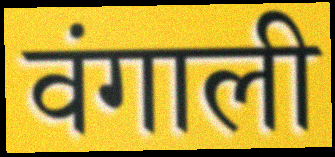
वंगाली